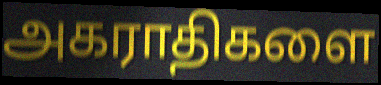
அகராதிகளை